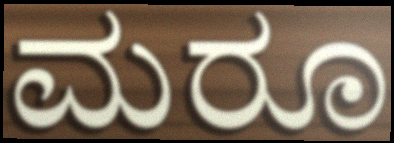
ಮರೂ